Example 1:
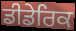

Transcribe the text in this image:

ਡੀਡੇਰਿਕ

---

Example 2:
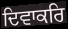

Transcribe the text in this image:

ਦਿਵਾਕਰਿ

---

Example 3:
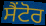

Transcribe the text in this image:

ਸੈਂਟੋਰ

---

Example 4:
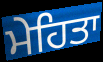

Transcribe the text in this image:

ਮੇਹਿਤਾ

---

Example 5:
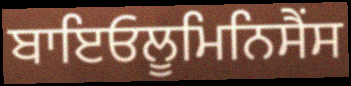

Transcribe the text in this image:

ਬਾਇਓਲੂਮਿਨਿਸੈਂਸ